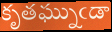
కృతఘ్నుఁడా